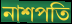
নাশপতি